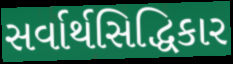
સર્વાર્થસિદ્ધિકાર